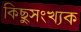
কিছুসংখ্যক